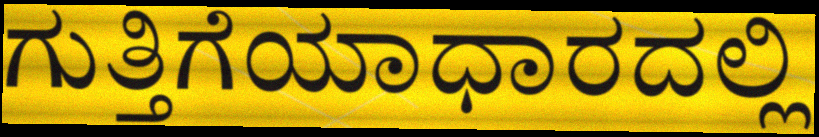
ಗುತ್ತಿಗೆಯಾಧಾರದಲ್ಲಿ